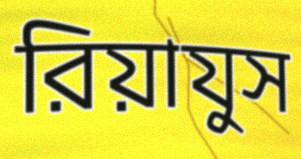
রিয়াযুস